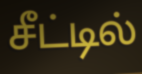
சீட்டில்